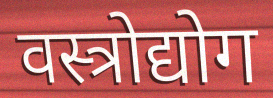
वस्त्रोद्योग